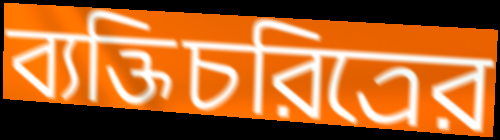
ব্যক্তিচরিত্রের